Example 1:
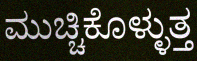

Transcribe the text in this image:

ಮುಚ್ಚಿಕೊಳ್ಳುತ್ತ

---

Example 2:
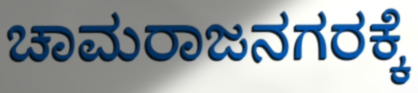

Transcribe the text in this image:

ಚಾಮರಾಜನಗರಕ್ಕೆ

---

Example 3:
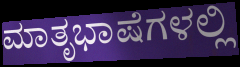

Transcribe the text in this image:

ಮಾತೃಭಾಷೆಗಳಲ್ಲಿ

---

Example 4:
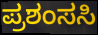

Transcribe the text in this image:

ಪ್ರಶಂಸಸಿ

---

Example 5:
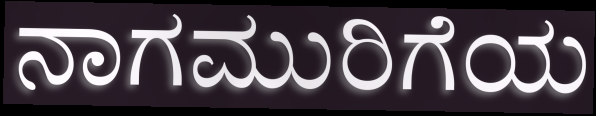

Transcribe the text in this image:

ನಾಗಮುರಿಗೆಯ